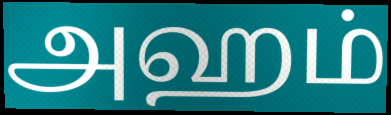
அஹம்